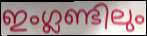
ഇംഗ്ലണ്ടിലും